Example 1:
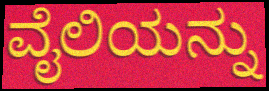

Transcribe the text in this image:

ವೈಲಿಯನ್ನು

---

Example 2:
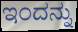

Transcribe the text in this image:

ಇಂದನ್ನು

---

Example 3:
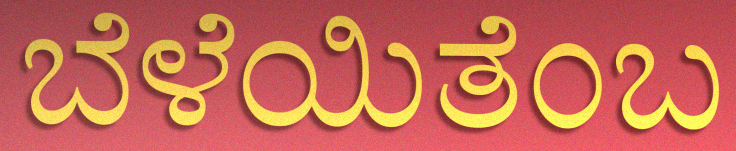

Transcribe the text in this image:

ಬೆಳೆಯಿತೆಂಬ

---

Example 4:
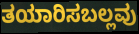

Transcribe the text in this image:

ತಯಾರಿಸಬಲ್ಲವು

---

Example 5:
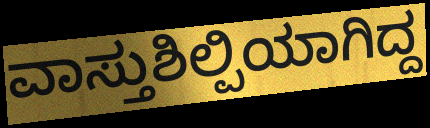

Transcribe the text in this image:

ವಾಸ್ತುಶಿಲ್ಪಿಯಾಗಿದ್ದ